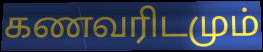
கணவரிடமும்